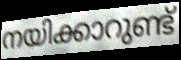
നയിക്കാറുണ്ട്